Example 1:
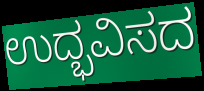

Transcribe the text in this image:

ಉದ್ಭವಿಸದ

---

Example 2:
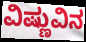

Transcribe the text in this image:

ವಿಷ್ಣುವಿನ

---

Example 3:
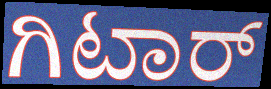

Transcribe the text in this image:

ಗಿಟಾರ್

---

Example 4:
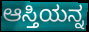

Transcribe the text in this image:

ಆಸ್ತಿಯನ್ನ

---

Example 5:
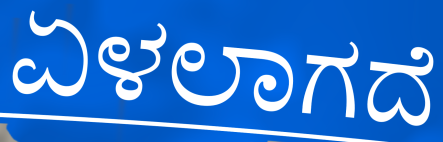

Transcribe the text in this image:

ಏಳಲಾಗದೆ